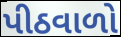
પીઠવાળો